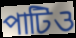
পাটিও